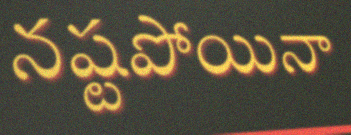
నష్టపోయినా